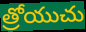
త్రోయుచు